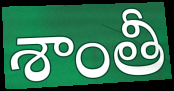
శాంతీ